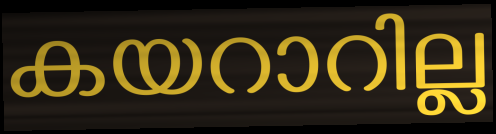
കയറാറില്ല